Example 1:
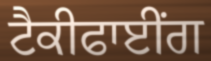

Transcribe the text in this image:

ਟੈਕੀਫਾਈਂਗ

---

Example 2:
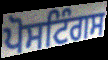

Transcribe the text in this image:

ਪੋਸਟਿੰਗਸ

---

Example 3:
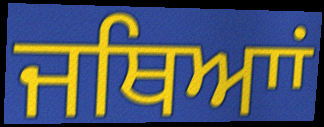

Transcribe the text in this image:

ਜਥਿਆਾਂ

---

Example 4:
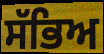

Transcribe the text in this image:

ਸੱਭਿਅ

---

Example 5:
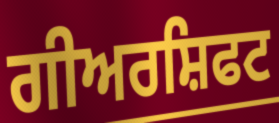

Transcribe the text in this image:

ਗੀਅਰਸ਼ਿਫਟ